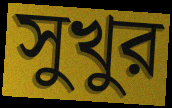
সুখুর